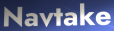
Navtake